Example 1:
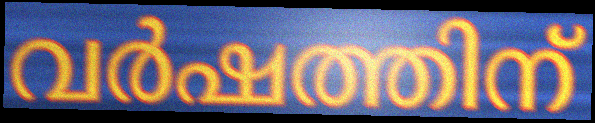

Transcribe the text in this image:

വർഷത്തിന്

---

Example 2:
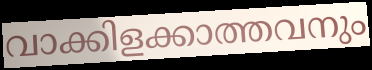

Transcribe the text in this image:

വാക്കിളക്കാത്തവനും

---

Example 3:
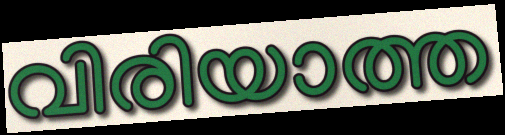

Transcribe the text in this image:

വിരിയാത്ത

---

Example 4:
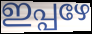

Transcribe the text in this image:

ഇപ്പഴേ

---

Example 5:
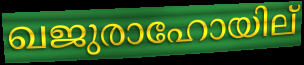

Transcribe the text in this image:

ഖജുരാഹോയില്